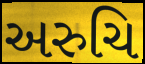
અરુચિ